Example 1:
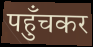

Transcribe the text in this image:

पहुँचकर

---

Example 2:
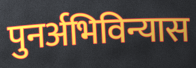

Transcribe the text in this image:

पुनर्अभिविन्यास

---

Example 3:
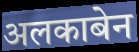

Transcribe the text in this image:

अलकाबेन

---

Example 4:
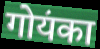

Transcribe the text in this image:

गोयंका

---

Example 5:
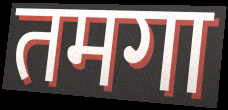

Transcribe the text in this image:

तमगा